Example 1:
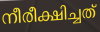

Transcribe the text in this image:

നീരീക്ഷിച്ചത്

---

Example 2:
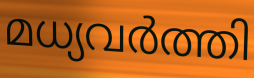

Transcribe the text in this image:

മധ്യവർത്തി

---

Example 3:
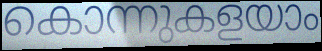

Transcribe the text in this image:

കൊന്നുകളയാം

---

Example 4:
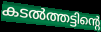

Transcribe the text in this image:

കടൽത്തട്ടിന്റെ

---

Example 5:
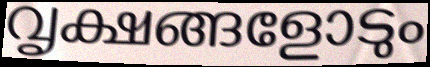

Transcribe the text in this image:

വൃക്ഷങ്ങളോടും